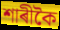
শাৰীকৈ